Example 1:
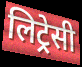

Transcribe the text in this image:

लिट्रेसी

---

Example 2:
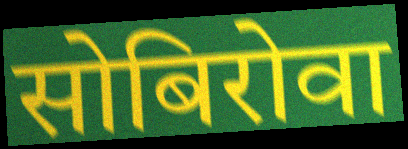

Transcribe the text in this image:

सोबिरोवा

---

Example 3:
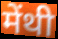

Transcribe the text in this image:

मेंथी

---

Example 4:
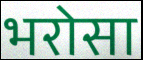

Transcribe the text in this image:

भरोसा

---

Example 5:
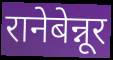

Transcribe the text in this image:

रानेबेन्नूर